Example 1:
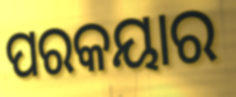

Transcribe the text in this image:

ପରକୟାର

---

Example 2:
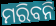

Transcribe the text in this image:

ମରିବନି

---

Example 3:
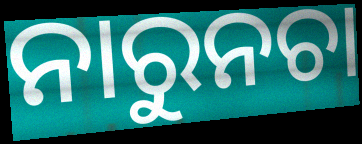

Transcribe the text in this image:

ନାରୁନଚା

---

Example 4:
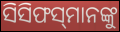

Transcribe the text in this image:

ସିସିଫସ୍‌ମାନଙ୍କୁ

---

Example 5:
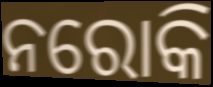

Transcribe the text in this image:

ନରୋକି